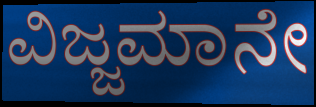
ವಿಜ್ಜಮಾನೇ